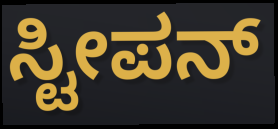
ಸ್ಟೀಪನ್